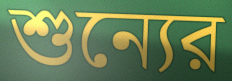
শুন্যের